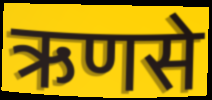
ऋणसे